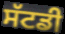
ਸੱਟਡੀ